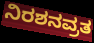
ನಿರಶನವ್ರತ